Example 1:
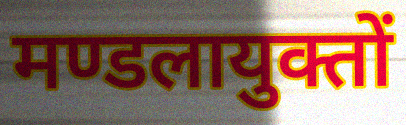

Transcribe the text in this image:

मण्डलायुक्तों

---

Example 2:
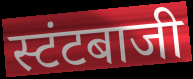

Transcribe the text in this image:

स्टंटबाजी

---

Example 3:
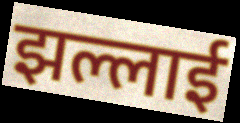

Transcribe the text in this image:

झल्लाई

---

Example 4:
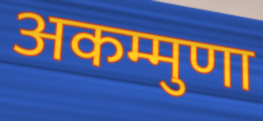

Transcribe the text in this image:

अकम्मुणा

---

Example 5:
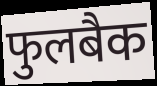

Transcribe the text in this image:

फुलबैक